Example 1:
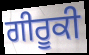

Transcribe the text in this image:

ਗੀਰੂਕੀ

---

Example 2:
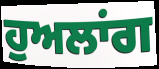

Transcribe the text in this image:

ਹੁਅਲਾਂਗ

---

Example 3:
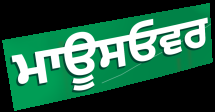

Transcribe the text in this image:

ਮਾਊਸਓਵਰ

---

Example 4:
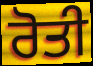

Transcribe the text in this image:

ਰੋਤੀ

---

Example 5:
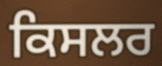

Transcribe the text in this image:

ਕਿਸਲਰ